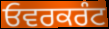
ਓਵਰਕਰੰਟ